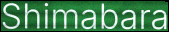
Shimabara